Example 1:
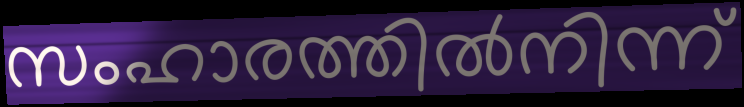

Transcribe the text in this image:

സംഹാരത്തിൽനിന്ന്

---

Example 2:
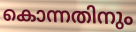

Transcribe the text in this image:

കൊന്നതിനും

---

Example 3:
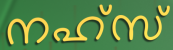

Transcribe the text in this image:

നഹ്സ്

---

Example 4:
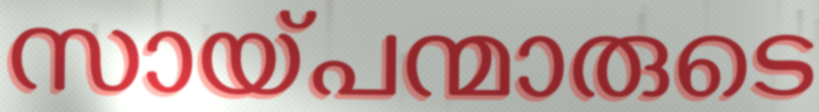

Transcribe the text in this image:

സായ്പന്മാരുടെ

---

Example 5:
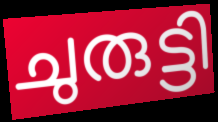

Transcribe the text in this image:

ചുരുട്ടി